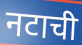
नटाची